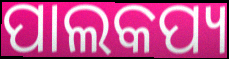
ପାଲକପ୍ୟ